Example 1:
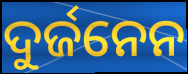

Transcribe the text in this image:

ଦୁର୍ଜନେନ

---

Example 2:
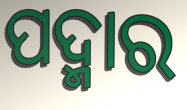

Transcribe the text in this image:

ପଦ୍ମାର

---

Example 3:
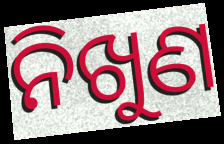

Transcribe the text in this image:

ନିଖୁଣ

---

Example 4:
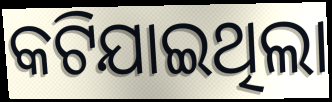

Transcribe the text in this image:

କଟିଯାଇଥିଲା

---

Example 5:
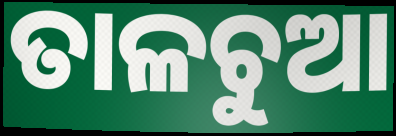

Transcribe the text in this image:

ତାଳଚୁଆ